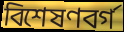
বিশেষণবর্গ